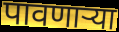
पावणाऱ्या